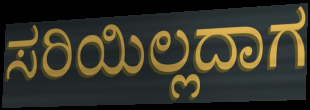
ಸರಿಯಿಲ್ಲದಾಗ